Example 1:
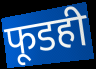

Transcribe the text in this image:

फूडही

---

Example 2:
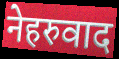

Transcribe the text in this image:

नेहरुवाद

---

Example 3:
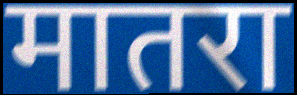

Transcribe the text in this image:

मातरा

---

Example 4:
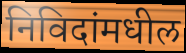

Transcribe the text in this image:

निविदांमधील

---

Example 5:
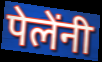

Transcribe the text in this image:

पेलेंनी